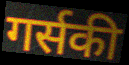
गर्सकी